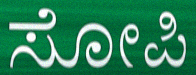
ಸೋಪಿ